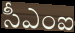
సీఎంఐ